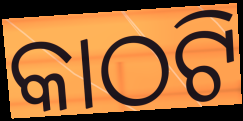
କାଠଟି